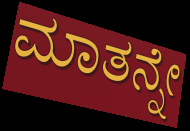
ಮಾತನ್ನೇ